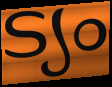
ട്യം